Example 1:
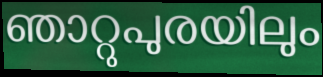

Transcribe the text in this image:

ഞാറ്റുപുരയിലും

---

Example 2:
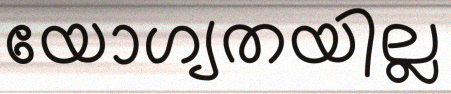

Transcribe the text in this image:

യോഗ്യതയില്ല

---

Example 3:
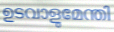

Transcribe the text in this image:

ഉടവാളുമേന്തി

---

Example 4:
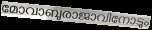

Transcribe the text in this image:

മോവാബുരാജാവിനോടും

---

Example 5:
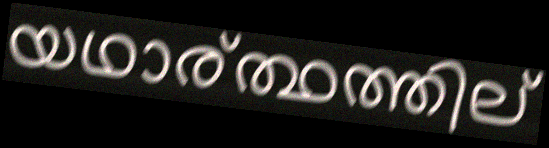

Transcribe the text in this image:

യഥാര്ത്ഥത്തില്